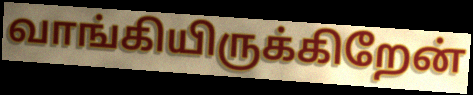
வாங்கியிருக்கிறேன்